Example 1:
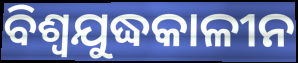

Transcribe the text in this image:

ବିଶ୍ୱଯୁଦ୍ଧକାଳୀନ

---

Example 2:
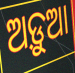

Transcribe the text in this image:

ଅଡ଼ୁଆ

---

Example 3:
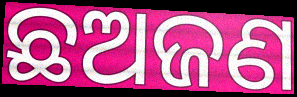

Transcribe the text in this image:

ଛଅଜଣ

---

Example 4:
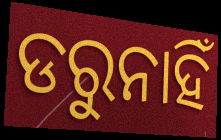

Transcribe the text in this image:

ଡରୁନାହିଁ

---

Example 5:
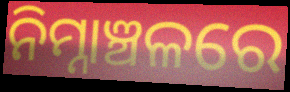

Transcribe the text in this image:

ନିମ୍ନାଞ୍ଚଳରେ